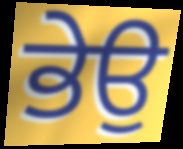
ਭੇਉ